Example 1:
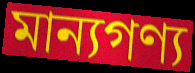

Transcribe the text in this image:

মান্যগণ্য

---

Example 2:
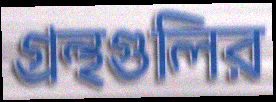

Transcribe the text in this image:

গ্রন্থগুলির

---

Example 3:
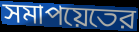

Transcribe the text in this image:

সমাপয়েতের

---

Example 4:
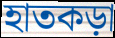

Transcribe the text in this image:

হাতকড়া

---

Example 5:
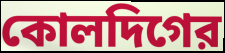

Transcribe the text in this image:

কোলদিগের